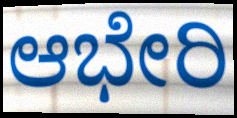
ಆಭೇರಿ